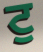
ਟੁ